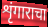
शृंगाराचा